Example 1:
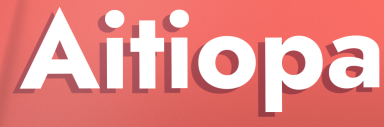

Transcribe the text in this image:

Aitiopa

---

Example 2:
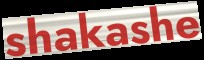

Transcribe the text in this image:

shakashe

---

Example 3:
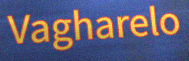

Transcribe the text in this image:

Vagharelo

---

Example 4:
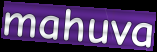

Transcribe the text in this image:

mahuva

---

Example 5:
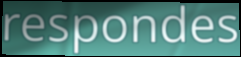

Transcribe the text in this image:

respondes